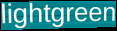
lightgreen